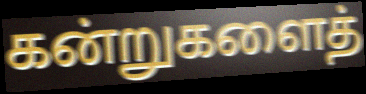
கன்றுகளைத்